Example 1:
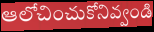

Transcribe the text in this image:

ఆలోచించుకోనివ్వండి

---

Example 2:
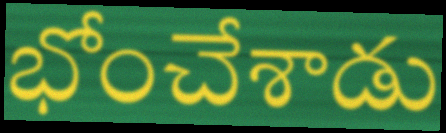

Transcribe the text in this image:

భోంచేశాడు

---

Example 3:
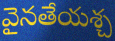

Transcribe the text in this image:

వైనతేయశ్చ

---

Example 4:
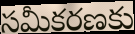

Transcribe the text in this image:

సమీకరణకు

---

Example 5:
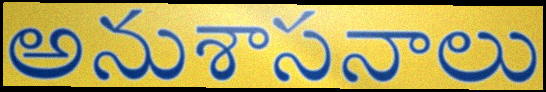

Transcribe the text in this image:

అనుశాసనాలు